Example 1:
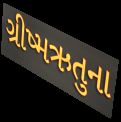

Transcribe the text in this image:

ગ્રીષ્મઋતુના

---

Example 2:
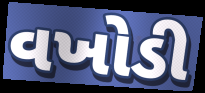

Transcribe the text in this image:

વખોડી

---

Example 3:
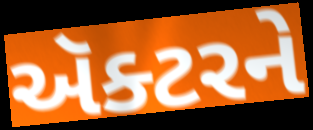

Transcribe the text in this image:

ઍક્ટરને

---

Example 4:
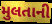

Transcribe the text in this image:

મુલતાની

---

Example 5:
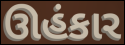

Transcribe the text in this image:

ઊહંકાર